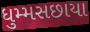
ધુમ્મસછાયા